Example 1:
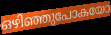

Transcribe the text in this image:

ഒഴിഞ്ഞുപോകയോ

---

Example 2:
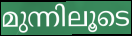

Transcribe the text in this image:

മുന്നിലൂടെ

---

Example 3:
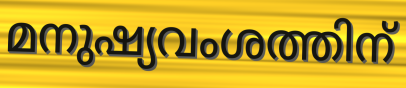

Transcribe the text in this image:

മനുഷ്യവംശത്തിന്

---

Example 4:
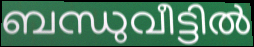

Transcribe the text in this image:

ബന്ധുവീട്ടിൽ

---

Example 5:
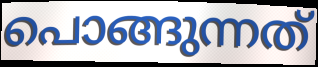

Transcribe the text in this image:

പൊങ്ങുന്നത്